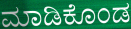
ಮಾಡಿಕೊಂಡ